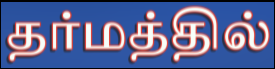
தர்மத்தில்